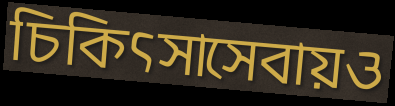
চিকিৎসাসেবায়ও